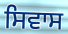
ਸਿਵਾਸ